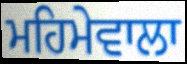
ਮਹਿਮੇਵਾਲਾ